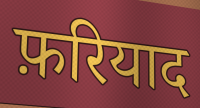
फ़रियाद